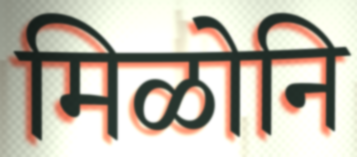
मिळोनि